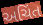
અચિંત